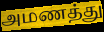
அமணத்து